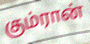
கும்ரான்